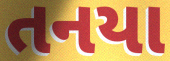
તનયા